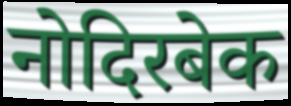
नोदिरबेक